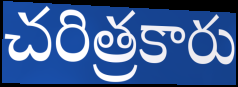
చరిత్రకారు